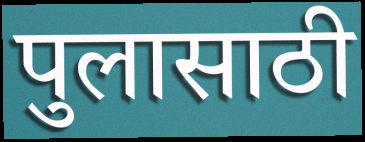
पुलासाठी